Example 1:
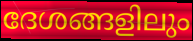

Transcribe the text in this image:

ദേശങ്ങളിലും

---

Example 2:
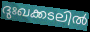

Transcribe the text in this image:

ദുഃഖക്കടലിൽ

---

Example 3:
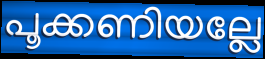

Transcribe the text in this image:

പൂക്കണിയല്ലേ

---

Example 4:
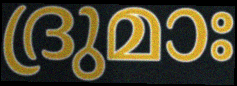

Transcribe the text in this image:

ദ്രുമാഃ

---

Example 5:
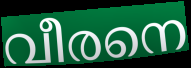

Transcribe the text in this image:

വീരനെ